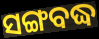
ସଙ୍ଗବଦ୍ଧ